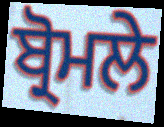
ਬ੍ਰੋਮਲੇ